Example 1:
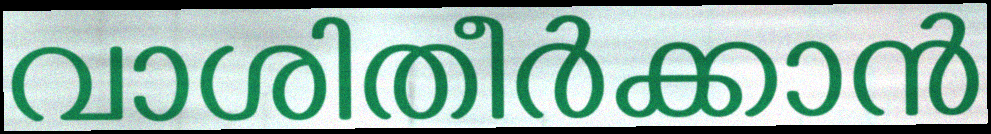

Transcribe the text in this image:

വാശിതീർക്കാൻ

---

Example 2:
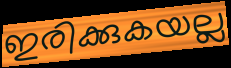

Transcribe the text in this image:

ഇരിക്കുകയല്ല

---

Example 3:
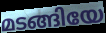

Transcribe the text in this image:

മടങ്ങിയേ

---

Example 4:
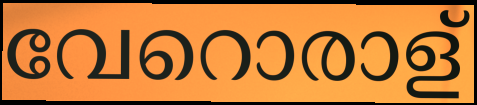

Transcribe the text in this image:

വേറൊരാള്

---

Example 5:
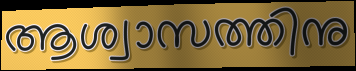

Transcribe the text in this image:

ആശ്വാസത്തിനു